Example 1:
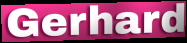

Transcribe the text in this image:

Gerhard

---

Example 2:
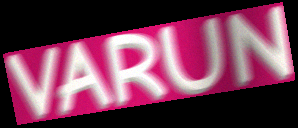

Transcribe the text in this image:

VARUN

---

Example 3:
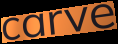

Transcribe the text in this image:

carve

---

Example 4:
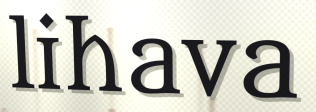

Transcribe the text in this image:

lihava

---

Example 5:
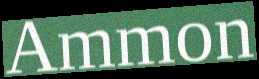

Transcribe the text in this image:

Ammon